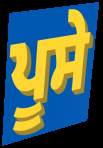
ਪੂਸੇ